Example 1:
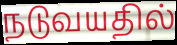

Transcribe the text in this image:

நடுவயதில்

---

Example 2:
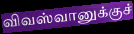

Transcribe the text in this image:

விவஸ்வானுக்குச்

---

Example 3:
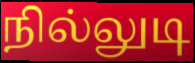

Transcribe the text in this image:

நில்லுடி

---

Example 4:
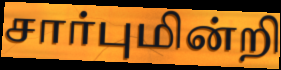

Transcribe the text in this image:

சார்புமின்றி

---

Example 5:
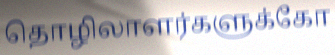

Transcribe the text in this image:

தொழிலாளர்களுக்கோ